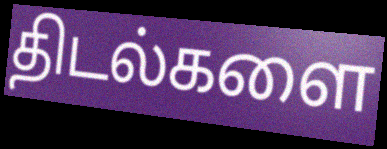
திடல்களை